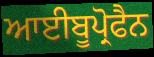
ਆਈਬੂਪ੍ਰੋਫੈਨ